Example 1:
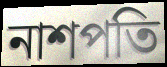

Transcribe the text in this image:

নাশপতি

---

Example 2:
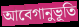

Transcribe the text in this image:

আবেগানুভূতি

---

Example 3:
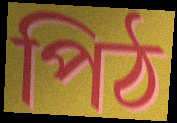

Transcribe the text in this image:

পিঠ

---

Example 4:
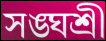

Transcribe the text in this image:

সঙ্ঘশ্রী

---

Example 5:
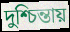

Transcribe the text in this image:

দুশ্চিন্তায়